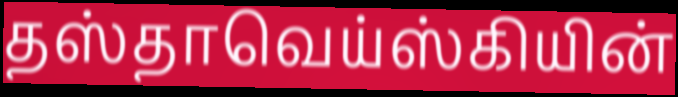
தஸ்தாவெய்ஸ்கியின்